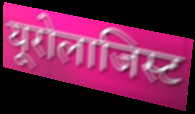
यूरोलाजिस्ट